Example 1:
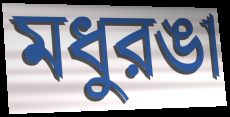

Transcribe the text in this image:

মধুরঙা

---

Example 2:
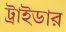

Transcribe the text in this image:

ট্রাইডার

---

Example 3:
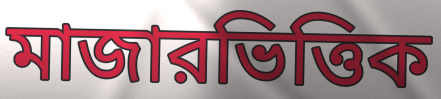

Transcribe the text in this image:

মাজারভিত্তিক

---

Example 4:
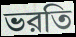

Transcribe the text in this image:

ভরতি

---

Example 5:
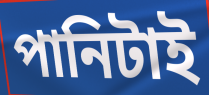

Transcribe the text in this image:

পানিটাই